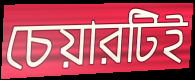
চেয়ারটিই